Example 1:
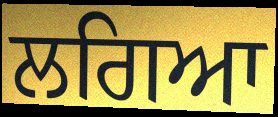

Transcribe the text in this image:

ਲਗਿਆ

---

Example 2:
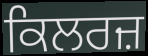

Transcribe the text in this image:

ਕਿਲਰਜ਼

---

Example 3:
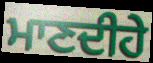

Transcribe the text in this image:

ਮਾਣਦੀਹੇ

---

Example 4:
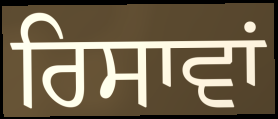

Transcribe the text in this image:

ਰਿਸਾਵਾਂ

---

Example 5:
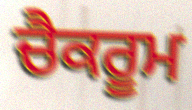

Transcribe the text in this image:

ਚੈਕਰੂਮ